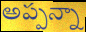
అప్పన్నా